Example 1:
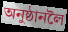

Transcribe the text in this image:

অনুষ্ঠানলৈ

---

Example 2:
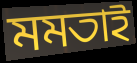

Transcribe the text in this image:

মমতাই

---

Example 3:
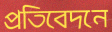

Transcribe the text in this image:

প্ৰতিবেদনে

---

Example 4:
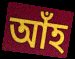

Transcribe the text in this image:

আঁহ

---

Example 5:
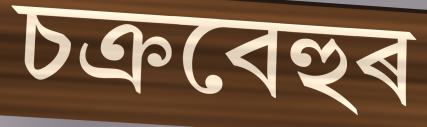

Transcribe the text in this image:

চক্ৰবেহুৰ